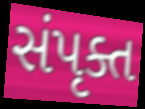
સંપૃક્ત